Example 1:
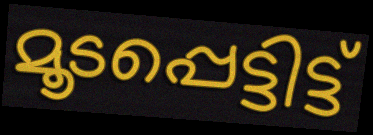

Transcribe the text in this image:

മൂടപ്പെട്ടിട്ട്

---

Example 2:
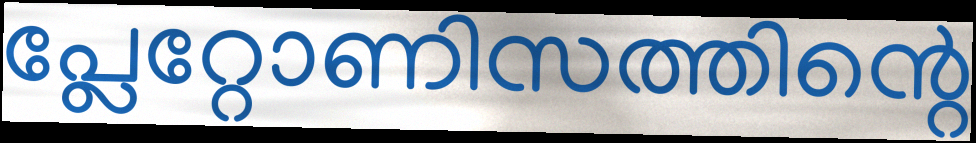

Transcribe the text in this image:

പ്ലേറ്റോണിസത്തിന്റെ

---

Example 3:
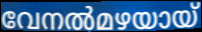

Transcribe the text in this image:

വേനൽമഴയായ്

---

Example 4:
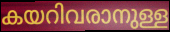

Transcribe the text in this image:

കയറിവരാനുള്ള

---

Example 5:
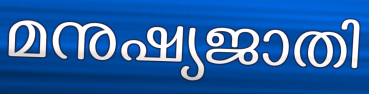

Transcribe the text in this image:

മനുഷ്യജാതി